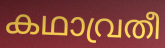
കഥാവ്രതീ